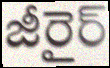
జీరైర్